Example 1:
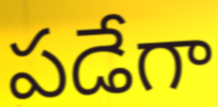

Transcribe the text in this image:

పడేగా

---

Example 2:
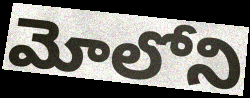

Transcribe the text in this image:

మోలోని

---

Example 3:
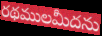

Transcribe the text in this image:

రథములమీదను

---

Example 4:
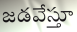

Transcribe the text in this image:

జడవేస్తూ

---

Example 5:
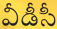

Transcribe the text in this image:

వీడీసీ